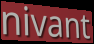
nivant